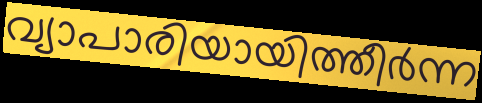
വ്യാപാരിയായിത്തീർന്ന